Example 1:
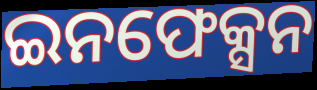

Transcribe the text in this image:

ଇନଫେକ୍ସନ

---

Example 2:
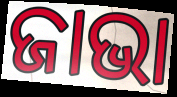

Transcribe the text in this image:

ଜାଭା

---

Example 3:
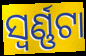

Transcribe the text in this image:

ସ୍ୱର୍ଣ୍ଣଟା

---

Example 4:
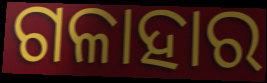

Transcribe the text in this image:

ଗଳାହାର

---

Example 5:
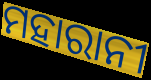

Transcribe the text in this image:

ମହାରାନୀ